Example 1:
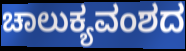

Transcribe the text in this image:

ಚಾಲುಕ್ಯವಂಶದ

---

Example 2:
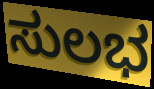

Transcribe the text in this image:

ಸುಲಭ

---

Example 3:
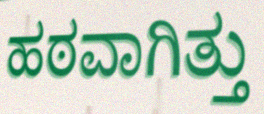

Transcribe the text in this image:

ಹಠವಾಗಿತ್ತು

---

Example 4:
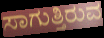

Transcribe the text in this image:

ಸಾಗುತ್ತಿರುವ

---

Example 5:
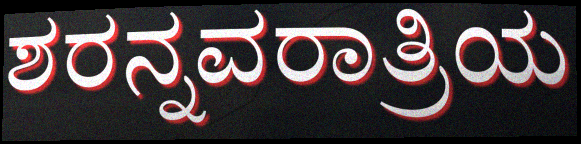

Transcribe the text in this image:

ಶರನ್ನವರಾತ್ರಿಯ